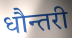
धौन्तरी